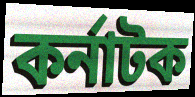
কর্নাটক